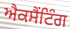
ਐਕਸੈਂਟਿੰਗ